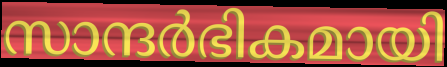
സാന്ദർഭികമായി